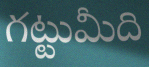
గట్టుమీది